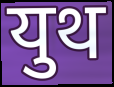
युथ